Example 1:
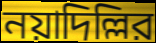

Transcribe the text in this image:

নয়াদিল্লির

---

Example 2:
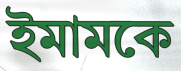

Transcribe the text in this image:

ইমামকে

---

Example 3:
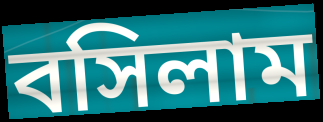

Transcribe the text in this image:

বসিলাম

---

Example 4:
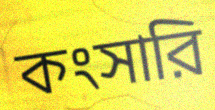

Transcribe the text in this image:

কংসারি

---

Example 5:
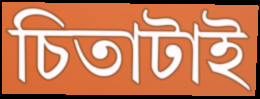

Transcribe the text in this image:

চিতাটাই